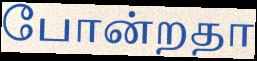
போன்றதா